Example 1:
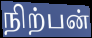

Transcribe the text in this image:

நிற்பன்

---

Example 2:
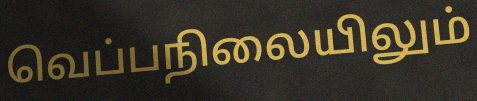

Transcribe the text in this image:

வெப்பநிலையிலும்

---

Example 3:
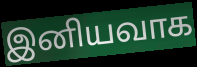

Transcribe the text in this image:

இனியவாக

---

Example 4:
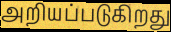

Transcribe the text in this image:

அறியப்படுகிறது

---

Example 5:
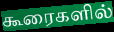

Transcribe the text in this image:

கூரைகளில்